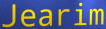
Jearim